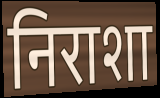
निराशा